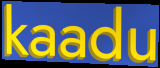
kaadu